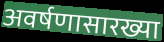
अवर्षणासारख्या